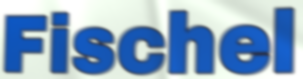
Fischel